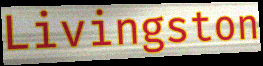
Livingston